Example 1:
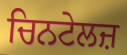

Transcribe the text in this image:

ਚਿਨਟੇਲਜ਼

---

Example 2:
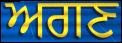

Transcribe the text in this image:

ਅਗਣ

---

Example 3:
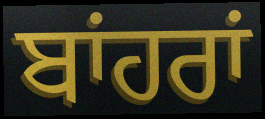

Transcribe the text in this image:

ਬਾਂਹਰਾਂ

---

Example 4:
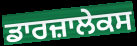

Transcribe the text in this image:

ਡਾਰਜ਼ਾਲੇਕਸ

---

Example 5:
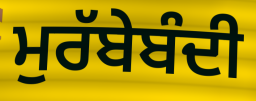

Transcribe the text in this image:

ਮੁਰੱਬੇਬੰਦੀ